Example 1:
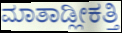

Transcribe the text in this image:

ಮಾತಾಡ್ಲೀಕತ್ತಿ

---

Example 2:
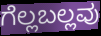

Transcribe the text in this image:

ಗೆಲ್ಲಬಲ್ಲವು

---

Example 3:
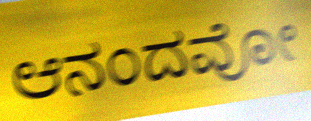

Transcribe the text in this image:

ಆನಂದವೋ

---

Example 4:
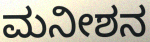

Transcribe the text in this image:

ಮನೀಶನ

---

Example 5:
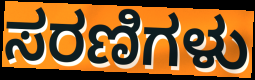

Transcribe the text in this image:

ಸರಣಿಗಳು